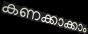
കണക്കാക്കാം